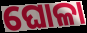
ଘୋଳା